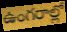
ఉంగరాల్లో